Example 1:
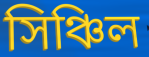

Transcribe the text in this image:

সিঞ্চিল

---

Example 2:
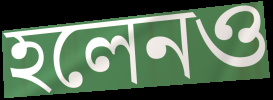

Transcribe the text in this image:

হলেনও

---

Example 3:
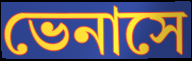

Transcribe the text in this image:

ভেনাসে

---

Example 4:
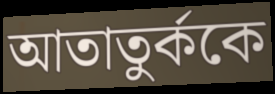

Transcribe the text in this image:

আতাতুর্ককে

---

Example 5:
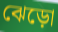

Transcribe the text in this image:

ঝেড়ো